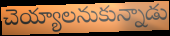
చెయ్యాలనుకున్నాడు